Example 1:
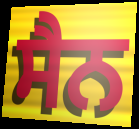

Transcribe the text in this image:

ਸੈਨ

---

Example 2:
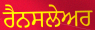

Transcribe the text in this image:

ਰੈਨਸਲੇਅਰ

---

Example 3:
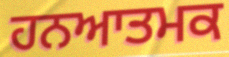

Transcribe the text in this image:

ਹਨਆਤਮਕ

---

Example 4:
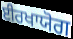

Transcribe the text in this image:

ਈਰਖਾਯੋਗ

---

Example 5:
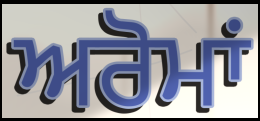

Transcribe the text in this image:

ਅਰੋਮਾਂ